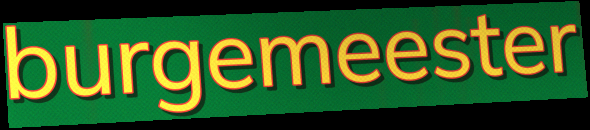
burgemeester